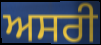
ਅਸਰੀ